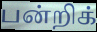
பன்றிக்